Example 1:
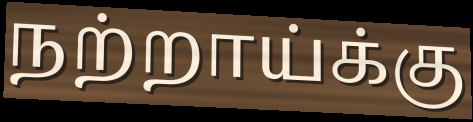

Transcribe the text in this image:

நற்றாய்க்கு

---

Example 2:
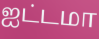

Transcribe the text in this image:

ஐட்டமா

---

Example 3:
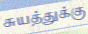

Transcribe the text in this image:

சுயத்துக்கு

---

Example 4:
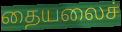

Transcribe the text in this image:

தையலைச்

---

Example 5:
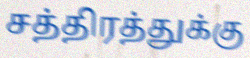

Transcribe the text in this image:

சத்திரத்துக்கு